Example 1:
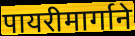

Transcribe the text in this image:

पायरीमार्गाने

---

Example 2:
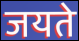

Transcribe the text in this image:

जयते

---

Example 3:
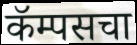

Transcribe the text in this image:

कॅम्पसचा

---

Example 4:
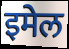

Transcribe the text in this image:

इमेल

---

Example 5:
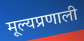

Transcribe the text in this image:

मूल्यप्रणाली